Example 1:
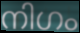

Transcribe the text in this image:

നിഗം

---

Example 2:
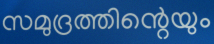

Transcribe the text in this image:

സമുദ്രത്തിന്റെയും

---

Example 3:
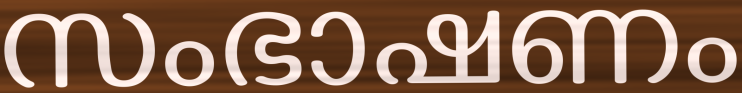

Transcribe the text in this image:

സംഭാഷണം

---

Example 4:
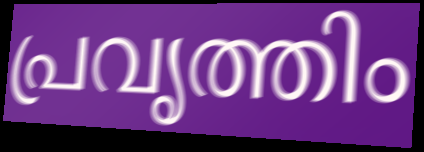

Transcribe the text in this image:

പ്രവൃത്തിം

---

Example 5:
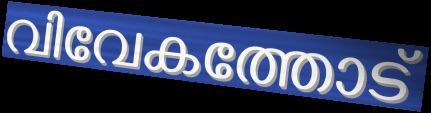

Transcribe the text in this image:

വിവേകത്തോട്